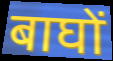
बाघों